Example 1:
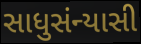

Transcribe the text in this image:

સાધુસંન્યાસી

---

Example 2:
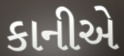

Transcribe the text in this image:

કાનીએ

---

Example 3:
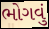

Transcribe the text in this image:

ભોગવું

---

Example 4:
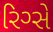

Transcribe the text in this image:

રિગ્સે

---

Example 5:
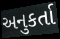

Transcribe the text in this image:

અનુકર્તા